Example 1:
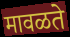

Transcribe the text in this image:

मावळते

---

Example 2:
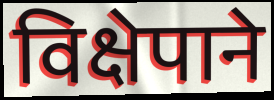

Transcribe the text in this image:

विक्षेपाने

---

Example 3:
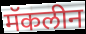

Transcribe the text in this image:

मॅकलीन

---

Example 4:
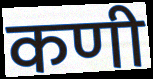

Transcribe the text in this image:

कणी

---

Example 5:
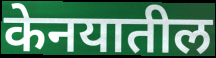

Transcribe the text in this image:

केनयातील